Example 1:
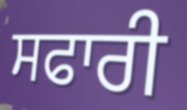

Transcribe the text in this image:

ਸਫਾਰੀ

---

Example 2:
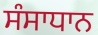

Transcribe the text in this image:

ਸੰਸਾਧਾਨ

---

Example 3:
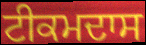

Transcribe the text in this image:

ਟੀਕਮਦਾਸ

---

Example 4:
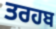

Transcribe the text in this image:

ਤਰਹਬ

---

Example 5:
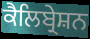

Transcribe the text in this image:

ਕੈਲਿਬ੍ਰੇਸ਼ਨ